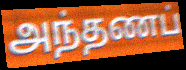
அந்தணப்